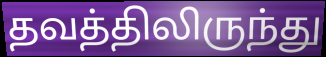
தவத்திலிருந்து